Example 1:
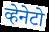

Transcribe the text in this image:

व्हेनेटो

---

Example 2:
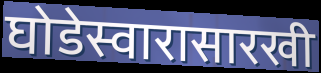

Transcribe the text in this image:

घोडेस्वारासारखी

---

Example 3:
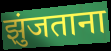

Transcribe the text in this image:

झुंजताना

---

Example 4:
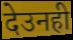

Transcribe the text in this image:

देउनही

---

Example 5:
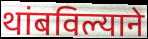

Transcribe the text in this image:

थांबविल्याने